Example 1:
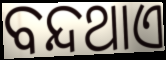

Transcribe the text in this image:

ବନ୍ଦଥାଏ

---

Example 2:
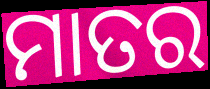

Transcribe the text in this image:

ମାତର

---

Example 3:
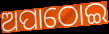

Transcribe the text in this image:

ଅପାଠୋଇ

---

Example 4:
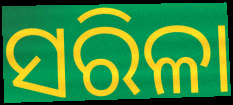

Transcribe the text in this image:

ସରିଳା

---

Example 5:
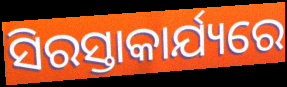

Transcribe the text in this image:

ସିରସ୍ତାକାର୍ଯ୍ୟରେ